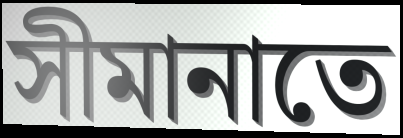
সীমানাতে